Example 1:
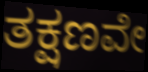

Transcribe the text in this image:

ತಕ್ಷಣವೇ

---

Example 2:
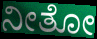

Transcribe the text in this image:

ನೀತೋ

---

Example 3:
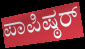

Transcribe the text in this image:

ಪಾಪಿಷ್ಠರ್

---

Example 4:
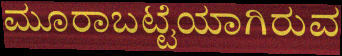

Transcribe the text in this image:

ಮೂರಾಬಟ್ಟೆಯಾಗಿರುವ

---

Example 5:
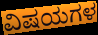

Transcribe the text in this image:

ವಿಷಯಗಳ